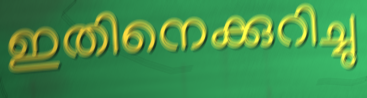
ഇതിനെക്കുറിച്ചു